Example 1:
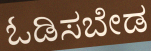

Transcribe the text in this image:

ಓಡಿಸಬೇಡ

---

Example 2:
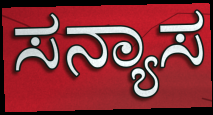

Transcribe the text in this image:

ಸನ್ಯಾಸ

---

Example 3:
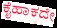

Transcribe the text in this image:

ಕೈಹಾಕದೇ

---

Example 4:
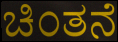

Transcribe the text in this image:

ಚಿಂತನೆ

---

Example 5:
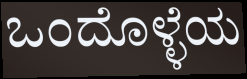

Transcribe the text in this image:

ಒಂದೊಳ್ಳೆಯ